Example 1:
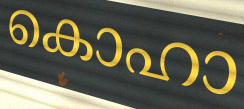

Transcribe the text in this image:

കൊഹാ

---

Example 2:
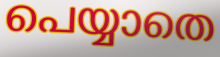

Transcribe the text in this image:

പെയ്യാതെ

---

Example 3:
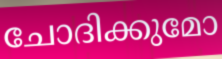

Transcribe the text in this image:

ചോദിക്കുമോ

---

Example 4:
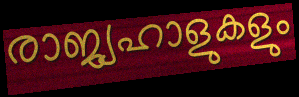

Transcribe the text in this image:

രാജ്യഹാളുകളും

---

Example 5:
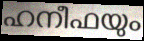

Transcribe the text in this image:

ഹനീഫയും